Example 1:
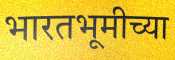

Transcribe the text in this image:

भारतभूमीच्या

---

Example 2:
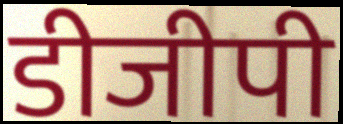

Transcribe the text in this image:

डीजीपी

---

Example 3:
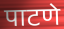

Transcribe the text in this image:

पाटणे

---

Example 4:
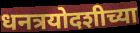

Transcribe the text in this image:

धनत्रयोदशीच्या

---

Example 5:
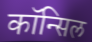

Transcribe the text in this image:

कॉन्सिल